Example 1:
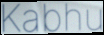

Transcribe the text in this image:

Kabhu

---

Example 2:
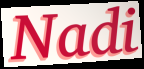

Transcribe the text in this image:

Nadi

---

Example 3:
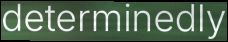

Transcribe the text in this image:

determinedly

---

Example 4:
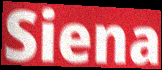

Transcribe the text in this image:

Siena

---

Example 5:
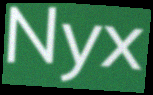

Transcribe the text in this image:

Nyx